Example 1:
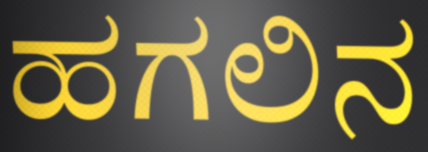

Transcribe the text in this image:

ಹಗಲಿನ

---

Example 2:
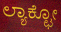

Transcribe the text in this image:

ಲ್ಯಾಕ್ಟೋ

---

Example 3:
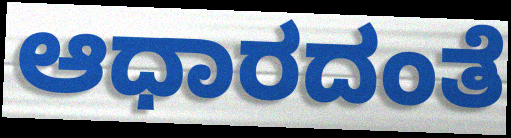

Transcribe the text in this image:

ಆಧಾರದಂತೆ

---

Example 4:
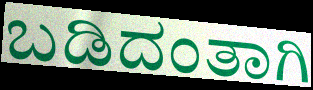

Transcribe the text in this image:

ಬಡಿದಂತಾಗಿ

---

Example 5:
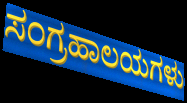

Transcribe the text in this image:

ಸಂಗ್ರಹಾಲಯಗಳು